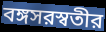
বঙ্গসরস্বতীর